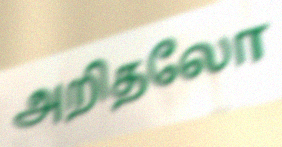
அறிதலோ